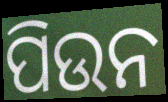
ପିଉନ